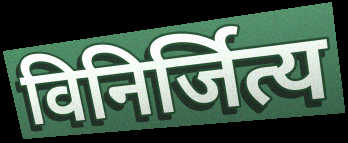
विनिर्जित्य